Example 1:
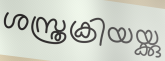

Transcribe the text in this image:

ശസ്ത്രക്രിയയ്ക്കു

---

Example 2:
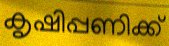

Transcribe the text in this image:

കൃഷിപ്പണിക്ക്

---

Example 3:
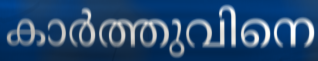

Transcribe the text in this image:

കാർത്തുവിനെ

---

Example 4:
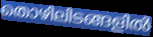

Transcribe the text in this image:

തൊഴിലിടങ്ങളിൽ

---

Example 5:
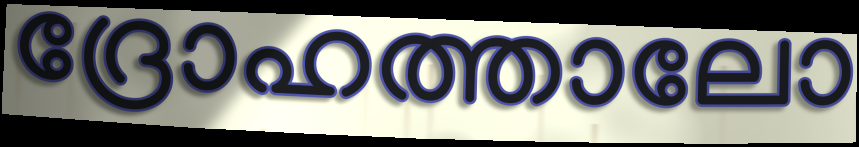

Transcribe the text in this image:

ദ്രോഹത്താലോ